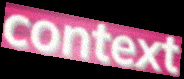
context